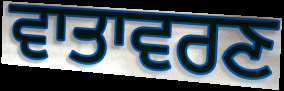
ਵਾਤਾਵਰਣ